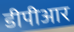
डीपीआर